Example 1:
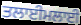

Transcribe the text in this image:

ਤਲਾਈਮਲਾਈ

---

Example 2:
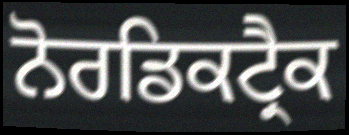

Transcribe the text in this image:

ਨੋਰਡਿਕਟ੍ਰੈਕ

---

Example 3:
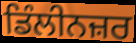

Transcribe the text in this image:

ਡਿੰਲੀਨਜ਼ਰ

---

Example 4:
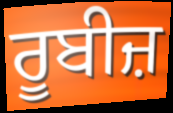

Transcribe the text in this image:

ਰੂਬੀਜ਼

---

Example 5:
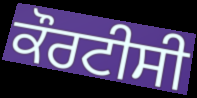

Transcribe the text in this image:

ਕੌਰਟੀਸੀ